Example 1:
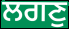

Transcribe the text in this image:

ਲਗਣੁ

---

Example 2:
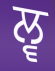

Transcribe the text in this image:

ਲ੍ਵ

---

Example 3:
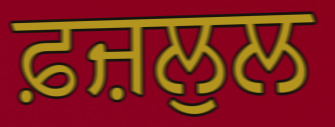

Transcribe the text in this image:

ਫ਼ਜ਼ਲੁਲ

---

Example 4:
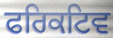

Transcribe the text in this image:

ਫਰਿਕਟਿਵ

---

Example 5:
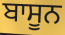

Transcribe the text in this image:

ਬਾਸੂਨ